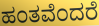
ಹಂತವೆಂದರೆ